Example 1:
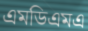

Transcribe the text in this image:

এমডিএমএ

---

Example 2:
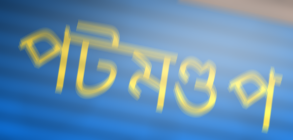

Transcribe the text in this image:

পটমণ্ডপ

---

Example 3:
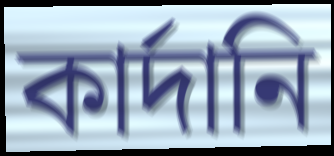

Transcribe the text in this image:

কার্দানি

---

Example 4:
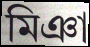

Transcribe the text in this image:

মিঞা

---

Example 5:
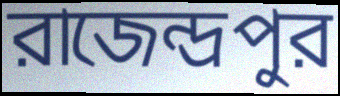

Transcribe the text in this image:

রাজেন্দ্রপুর